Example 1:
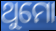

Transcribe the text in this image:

ଥୁମୋ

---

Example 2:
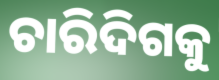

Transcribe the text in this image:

ଚାରିଦିଗକୁ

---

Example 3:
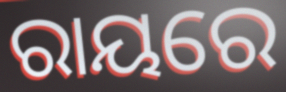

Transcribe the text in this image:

ରାୟରେ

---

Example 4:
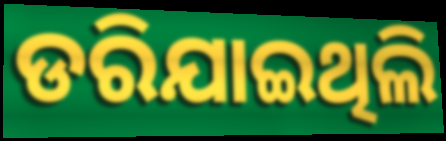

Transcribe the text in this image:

ଡରିଯାଇଥିଲି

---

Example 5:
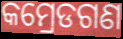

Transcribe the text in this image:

କମ୍ରେଡଗଣ